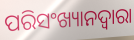
ପରିସଂଖ୍ୟାନଦ୍ଵାରା